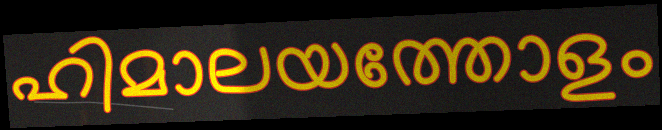
ഹിമാലയത്തോളം